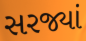
સરજ્યાં